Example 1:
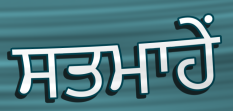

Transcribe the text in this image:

ਸਤਮਾਹੇਂ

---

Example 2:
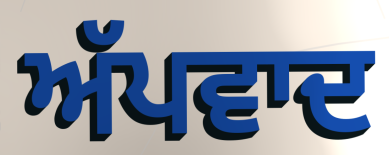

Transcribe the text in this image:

ਅੱਪਵਾਦ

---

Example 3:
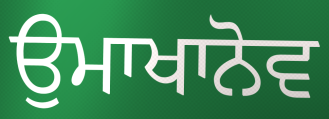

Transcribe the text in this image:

ਉਮਾਖਾਨੋਵ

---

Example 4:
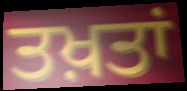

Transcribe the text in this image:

ਤਖ਼ਤਾਂ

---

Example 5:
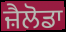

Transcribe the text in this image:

ਜ਼ੈਲੋਡਾ